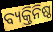
ବ୍ୟକ୍ତିନିଷ୍ଠ